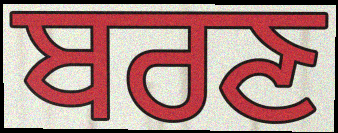
ਬਰਣ